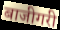
बाजीगरी